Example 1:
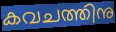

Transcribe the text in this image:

കവചത്തിനു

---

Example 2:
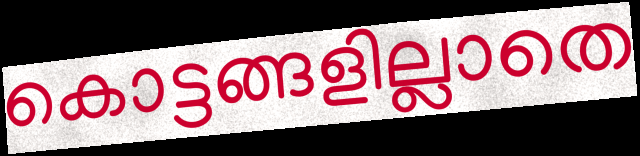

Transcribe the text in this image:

കൊട്ടങ്ങളില്ലാതെ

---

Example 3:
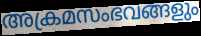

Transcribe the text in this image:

അക്രമസംഭവങ്ങളും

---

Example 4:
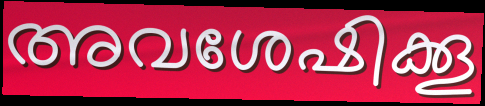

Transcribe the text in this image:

അവശേഷിക്കൂ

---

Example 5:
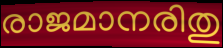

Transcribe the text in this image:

രാജമാനരിതു